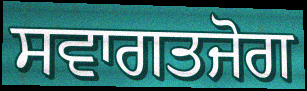
ਸਵਾਗਤਜੋਗ